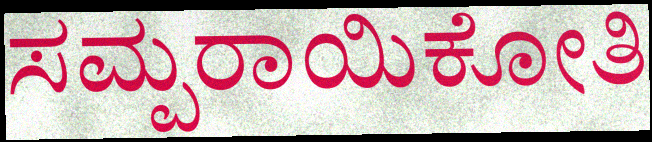
ಸಮ್ಪರಾಯಿಕೋತಿ